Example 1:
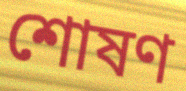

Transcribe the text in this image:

শোষণ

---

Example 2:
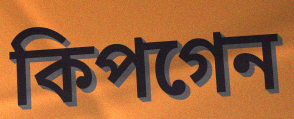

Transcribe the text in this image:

কিপগেন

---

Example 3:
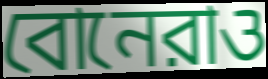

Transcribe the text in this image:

বোনেরাও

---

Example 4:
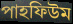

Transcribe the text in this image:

পাহফিউম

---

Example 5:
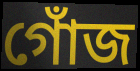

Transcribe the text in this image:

গোঁজ